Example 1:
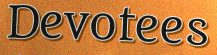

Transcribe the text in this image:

Devotees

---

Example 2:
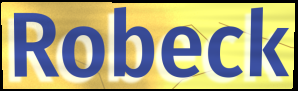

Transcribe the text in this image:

Robeck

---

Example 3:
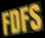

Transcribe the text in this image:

FDFS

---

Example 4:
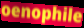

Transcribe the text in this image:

oenophile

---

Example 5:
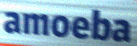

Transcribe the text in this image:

amoeba